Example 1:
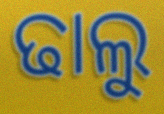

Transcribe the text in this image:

ଢାଲୁ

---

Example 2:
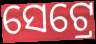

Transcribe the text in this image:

ସେଟ୍ରେ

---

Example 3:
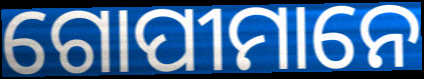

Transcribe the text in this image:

ଗୋପୀମାନେ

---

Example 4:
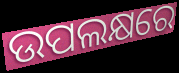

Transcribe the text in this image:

ଉପଲକ୍ଷରେ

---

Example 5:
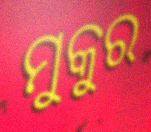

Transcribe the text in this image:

ମୁକୁର